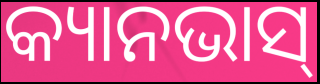
କ୍ୟାନଭାସ୍